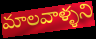
మాలవాళ్ళని